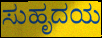
ಸುಹೃದಯ